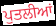
ਪੁਤਲੀਆਂ